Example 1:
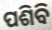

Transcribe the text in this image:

ପଶିବି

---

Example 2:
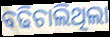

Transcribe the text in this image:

ବଢିଚାଲିଥିଲା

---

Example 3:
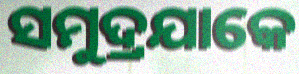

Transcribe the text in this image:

ସମୁଦ୍ରଯାକେ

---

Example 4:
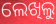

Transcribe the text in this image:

ଲେଖିଲୁ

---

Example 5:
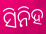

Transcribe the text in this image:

ସିନିହ